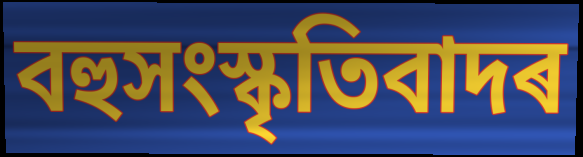
বহুসংস্কৃতিবাদৰ